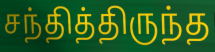
சந்தித்திருந்த